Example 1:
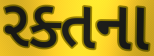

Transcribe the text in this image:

રક્તના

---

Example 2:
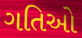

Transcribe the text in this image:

ગતિઓ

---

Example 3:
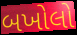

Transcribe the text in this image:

બખોલો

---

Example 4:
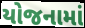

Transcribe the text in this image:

યોજનામાં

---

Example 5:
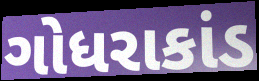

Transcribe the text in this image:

ગોધરાકાંડ